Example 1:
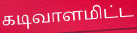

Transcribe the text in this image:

கடிவாளமிட்ட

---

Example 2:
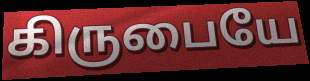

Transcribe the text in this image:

கிருபையே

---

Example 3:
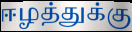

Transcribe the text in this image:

ஈழத்துக்கு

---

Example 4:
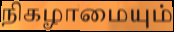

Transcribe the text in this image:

நிகழாமையும்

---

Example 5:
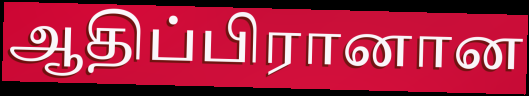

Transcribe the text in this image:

ஆதிப்பிரானான